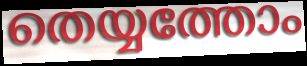
തെയ്യത്തോം